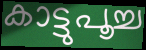
കാട്ടുപൂച്ച